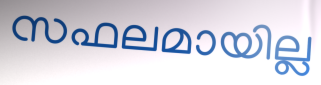
സഫലമായില്ല